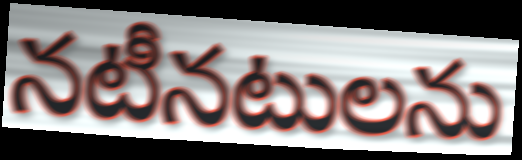
నటీనటులను